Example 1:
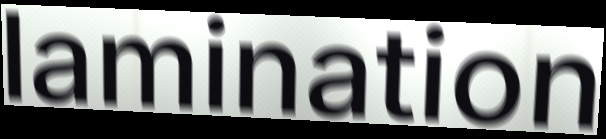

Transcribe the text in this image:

lamination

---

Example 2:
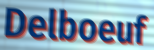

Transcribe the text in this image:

Delboeuf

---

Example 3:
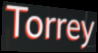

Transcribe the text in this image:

Torrey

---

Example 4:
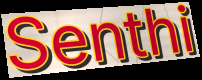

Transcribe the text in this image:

Senthi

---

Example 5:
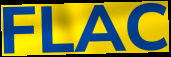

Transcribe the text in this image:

FLAC